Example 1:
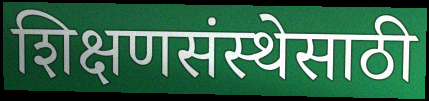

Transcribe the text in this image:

शिक्षणसंस्थेसाठी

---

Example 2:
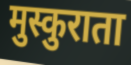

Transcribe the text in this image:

मुस्कुराता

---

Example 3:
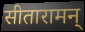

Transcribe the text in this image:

सीतारामन्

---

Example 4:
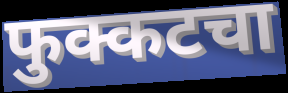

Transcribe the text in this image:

फुक्कटचा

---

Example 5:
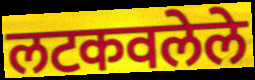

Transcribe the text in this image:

लटकवलेले